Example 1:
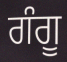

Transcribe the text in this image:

ਗੰਗੂ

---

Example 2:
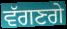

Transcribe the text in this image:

ਵੱਗਣਗੇ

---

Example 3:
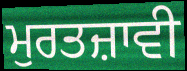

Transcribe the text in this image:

ਮੁਰਤਜ਼ਾਵੀ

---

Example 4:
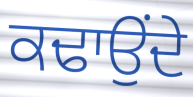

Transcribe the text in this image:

ਕਢਾਉਂਦੇ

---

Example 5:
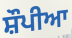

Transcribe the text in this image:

ਸ਼ੌਪੀਆ